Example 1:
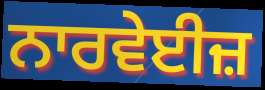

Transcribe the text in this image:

ਨਾਰਵੇਈਜ਼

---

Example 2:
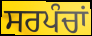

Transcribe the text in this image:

ਸਰਪੰਚਾਂ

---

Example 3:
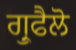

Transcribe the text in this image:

ਗ੍ਰੁਫੈਲੋ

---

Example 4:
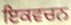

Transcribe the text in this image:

ਇਕਵਚਨ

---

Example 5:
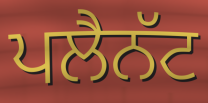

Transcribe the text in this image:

ਪਲੈਨੱਟ